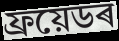
ফ্ৰয়েডৰ